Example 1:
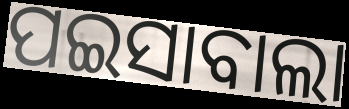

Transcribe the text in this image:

ପଇସାବାଲା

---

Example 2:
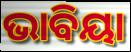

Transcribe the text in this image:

ଭାବିୟା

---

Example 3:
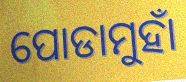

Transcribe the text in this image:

ପୋଡାମୁହାଁ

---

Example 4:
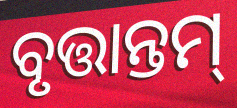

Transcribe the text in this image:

ବୃତ୍ତାନ୍ତମ୍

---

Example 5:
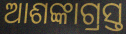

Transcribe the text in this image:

ଆଶଙ୍କାଗ୍ରସ୍ତ